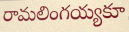
రామలింగయ్యకూ